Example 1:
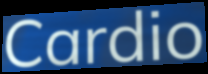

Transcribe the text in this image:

Cardio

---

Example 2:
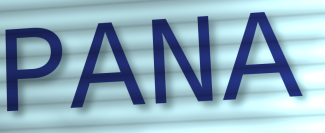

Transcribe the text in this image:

PANA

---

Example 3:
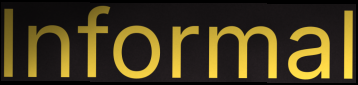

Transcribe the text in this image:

Informal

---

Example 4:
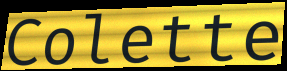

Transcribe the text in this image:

Colette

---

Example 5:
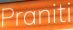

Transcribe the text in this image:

Praniti